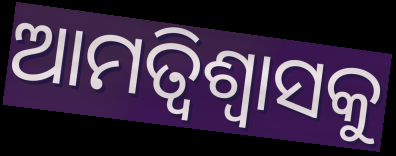
ଆମତ୍ବିଶ୍ୱାସକୁ